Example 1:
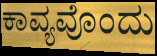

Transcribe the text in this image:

ಕಾವ್ಯವೊಂದು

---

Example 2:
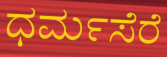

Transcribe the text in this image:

ಧರ್ಮಸೆರೆ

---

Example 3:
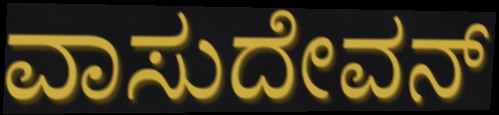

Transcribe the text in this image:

ವಾಸುದೇವನ್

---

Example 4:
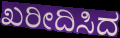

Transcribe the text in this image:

ಖರೀದಿಸಿದ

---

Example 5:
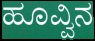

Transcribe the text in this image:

ಹೂವ್ವಿನ